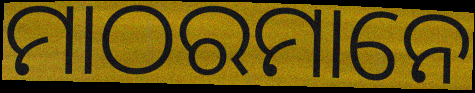
ମାଠରମାନେ